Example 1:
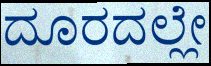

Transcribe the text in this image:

ದೂರದಲ್ಲೇ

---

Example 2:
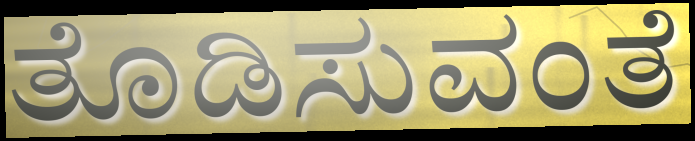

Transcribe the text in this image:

ತೊಡಿಸುವಂತೆ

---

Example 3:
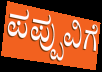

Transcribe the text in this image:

ಪಪ್ಪುವಿಗೆ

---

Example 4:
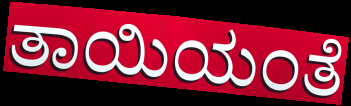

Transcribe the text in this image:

ತಾಯಿಯಂತೆ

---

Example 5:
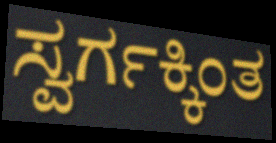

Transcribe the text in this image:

ಸ್ವರ್ಗಕ್ಕಿಂತ